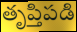
తృప్తిపడి